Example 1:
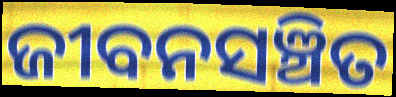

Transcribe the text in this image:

ଜୀବନସଞ୍ଚିତ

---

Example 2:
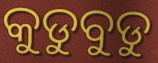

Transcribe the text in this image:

କୁଡୁବୁଡୁ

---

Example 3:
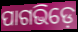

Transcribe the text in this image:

ପାଗଭିଡ଼େ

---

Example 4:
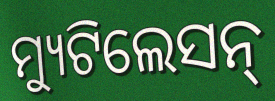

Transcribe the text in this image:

ମ୍ୟୁଟିଲେସନ୍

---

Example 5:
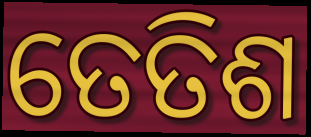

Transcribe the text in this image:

ତେତିଶ